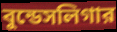
বুন্ডেসলিগার